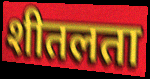
शीतलता